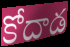
కోదాడ